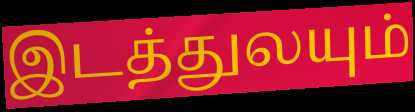
இடத்துலயும்